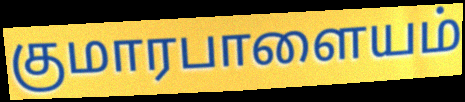
குமாரபாளையம்